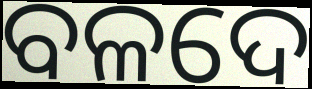
ବଳଦେ